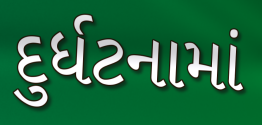
દુર્ધટનામાં